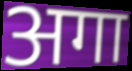
अगा